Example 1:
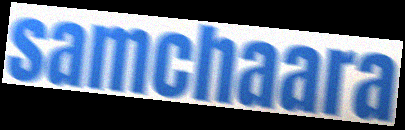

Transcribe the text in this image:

samchaara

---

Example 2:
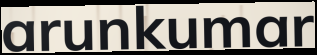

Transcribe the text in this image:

arunkumar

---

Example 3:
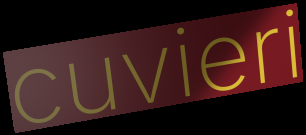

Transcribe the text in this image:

cuvieri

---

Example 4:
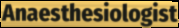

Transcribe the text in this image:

Anaesthesiologist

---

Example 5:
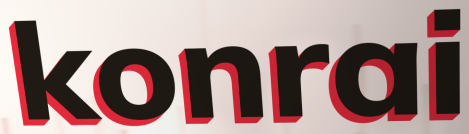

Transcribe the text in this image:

konrai